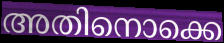
അതിനൊക്കെ